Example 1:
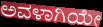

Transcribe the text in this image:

ಅವಳಾಗಿಯೇ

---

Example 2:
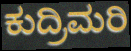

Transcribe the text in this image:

ಕುದ್ರಿಮರಿ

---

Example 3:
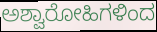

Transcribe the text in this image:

ಅಶ್ವಾರೋಹಿಗಳಿಂದ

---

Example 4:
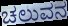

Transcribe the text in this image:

ಚಲುವನ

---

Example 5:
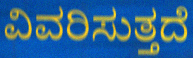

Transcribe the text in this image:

ವಿವರಿಸುತ್ತದೆ